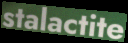
stalactite